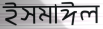
ইসমাঈল